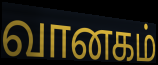
வானகம்